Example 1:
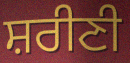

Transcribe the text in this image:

ਸ਼ਰੀਣੀ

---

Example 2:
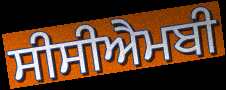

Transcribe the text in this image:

ਸੀਸੀਐਮਬੀ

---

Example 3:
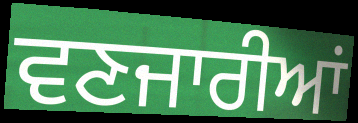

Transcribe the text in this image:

ਵਣਜਾਰੀਆਂ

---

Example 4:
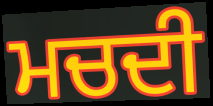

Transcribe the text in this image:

ਮਚਦੀ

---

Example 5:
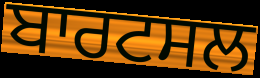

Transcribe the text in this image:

ਬਾਰਟਸਲ